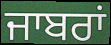
ਜਾਬਰਾਂ